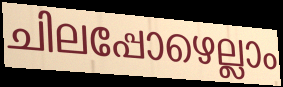
ചിലപ്പോഴെല്ലാം